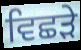
ਵਿਛੜੇ